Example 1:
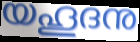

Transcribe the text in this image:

യഹൂദനു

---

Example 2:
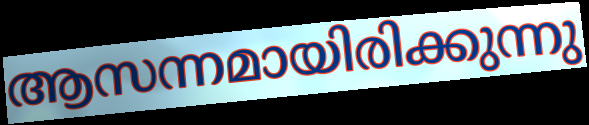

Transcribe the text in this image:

ആസന്നമായിരിക്കുന്നു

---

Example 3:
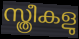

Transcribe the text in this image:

സ്ത്രീകളു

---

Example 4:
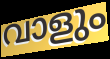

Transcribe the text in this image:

വാളും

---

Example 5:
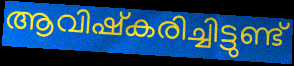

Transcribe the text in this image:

ആവിഷ്കരിച്ചിട്ടുണ്ട്